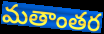
మతాంతర